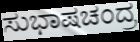
ಸುಭಾಷಚಂದ್ರ